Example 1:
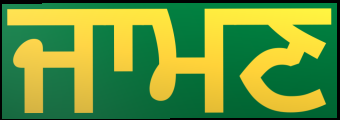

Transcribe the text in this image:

ਜਾਮਣ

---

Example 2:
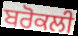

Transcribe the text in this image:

ਬਰੋਕਲੀ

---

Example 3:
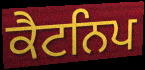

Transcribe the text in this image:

ਕੈਟਨਿਪ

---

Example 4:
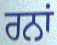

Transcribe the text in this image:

ਰਨਾਂ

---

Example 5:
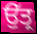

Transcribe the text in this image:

ਉੱਤ੍ਰ